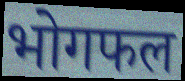
भोगफल